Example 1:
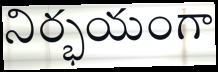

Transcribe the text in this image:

నిర్భయంగా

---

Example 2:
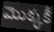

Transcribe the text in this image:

మొక్కకీ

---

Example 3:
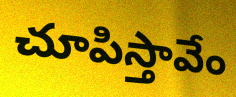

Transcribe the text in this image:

చూపిస్తావేం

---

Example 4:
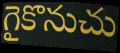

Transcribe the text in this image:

గైకొనుచు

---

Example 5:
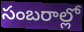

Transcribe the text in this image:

సంబరాల్లో